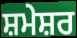
ਸ਼ਮੇਸ਼ਰ